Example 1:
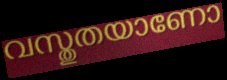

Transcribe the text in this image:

വസ്തുതയാണോ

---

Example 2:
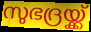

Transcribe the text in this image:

സുഭദ്രയ്ക്ക്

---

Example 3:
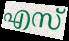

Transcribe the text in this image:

എസ്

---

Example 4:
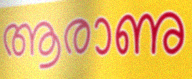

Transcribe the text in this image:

ആരാണു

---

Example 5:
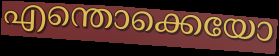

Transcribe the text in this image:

എന്തൊക്കെയോ